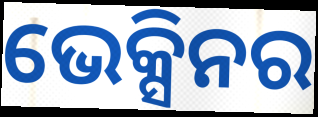
ଭେକ୍ସିନର